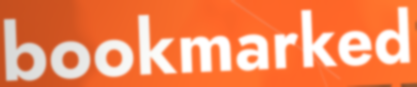
bookmarked